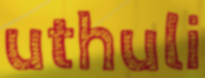
uthuli